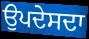
ਉਪਦੇਸਦਾ